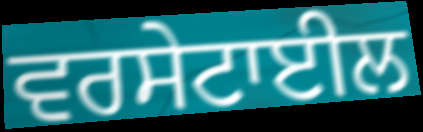
ਵਰਸੇਟਾਈਲ